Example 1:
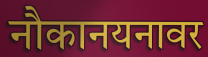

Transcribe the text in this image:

नौकानयनावर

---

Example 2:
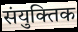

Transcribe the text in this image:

संयुक्‍तिक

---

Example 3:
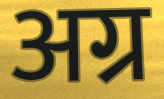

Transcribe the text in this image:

अग्र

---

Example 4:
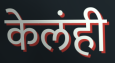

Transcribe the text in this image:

केलंही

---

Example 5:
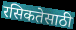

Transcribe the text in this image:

रसिकतेसाठी